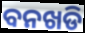
ବନଖଡି